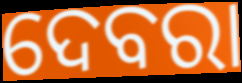
ଦେବରା